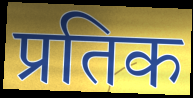
प्रतिक